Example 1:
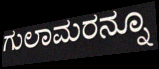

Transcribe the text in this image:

ಗುಲಾಮರನ್ನೂ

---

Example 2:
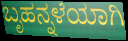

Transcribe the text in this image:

ಬೃಹನ್ನಳೆಯಾಗಿ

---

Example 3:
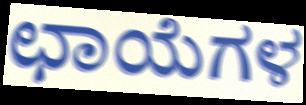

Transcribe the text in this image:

ಛಾಯೆಗಳ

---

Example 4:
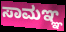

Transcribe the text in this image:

ಸಾಮಞ್ಞ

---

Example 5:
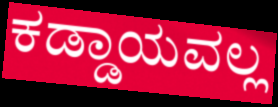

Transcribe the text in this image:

ಕಡ್ಡಾಯವಲ್ಲ